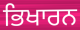
ਭਿਖਾਰਨ